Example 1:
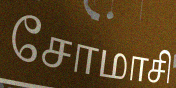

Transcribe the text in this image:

சோமாசி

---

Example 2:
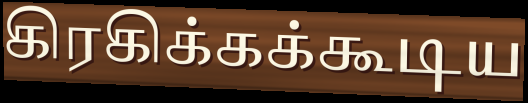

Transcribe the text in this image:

கிரகிக்கக்கூடிய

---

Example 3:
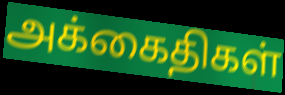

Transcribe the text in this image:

அக்கைதிகள்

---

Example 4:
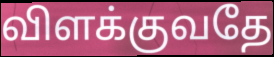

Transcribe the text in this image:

விளக்குவதே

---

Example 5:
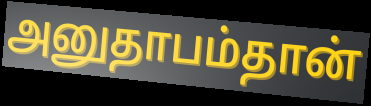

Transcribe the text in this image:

அனுதாபம்தான்